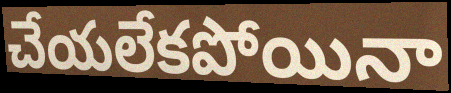
చేయలేకపోయినా